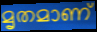
മൃതമാണ്